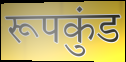
रूपकुंड